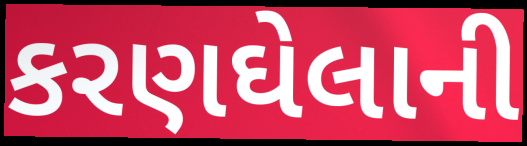
કરણઘેલાની